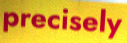
precisely